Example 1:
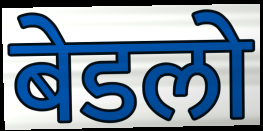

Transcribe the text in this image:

बेडलो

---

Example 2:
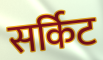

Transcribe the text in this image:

सर्किट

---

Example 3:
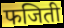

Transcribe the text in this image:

फजिती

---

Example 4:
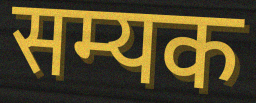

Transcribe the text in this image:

सम्यक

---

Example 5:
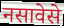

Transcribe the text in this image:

नसावेसे